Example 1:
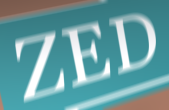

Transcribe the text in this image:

ZED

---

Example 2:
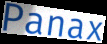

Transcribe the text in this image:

Panax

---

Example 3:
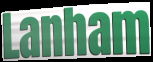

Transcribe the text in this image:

Lanham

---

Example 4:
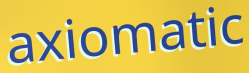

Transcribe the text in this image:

axiomatic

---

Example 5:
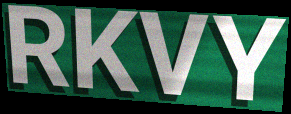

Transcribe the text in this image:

RKVY